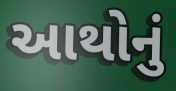
આથોનું